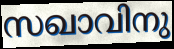
സഖാവിനു